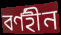
বৰ্ণহীন